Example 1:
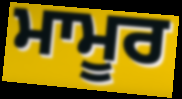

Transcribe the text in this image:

ਮਾਮੂਰ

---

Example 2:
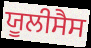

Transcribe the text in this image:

ਯੂਲੀਸੈਸ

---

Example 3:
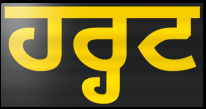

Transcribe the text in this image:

ਹਰ੍ਹਟ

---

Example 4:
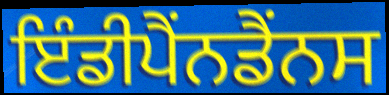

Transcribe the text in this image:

ਇੰਡੀਪੈਂਨਡੈਂਨਸ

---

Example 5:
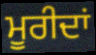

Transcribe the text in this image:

ਮੂਰੀਦਾਂ